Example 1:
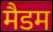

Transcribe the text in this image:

मैडम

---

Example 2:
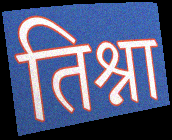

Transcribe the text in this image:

तिश्ना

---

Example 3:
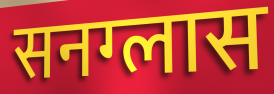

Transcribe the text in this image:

सनग्लास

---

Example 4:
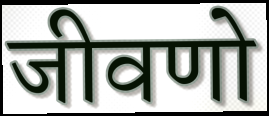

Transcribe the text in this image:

जीवणो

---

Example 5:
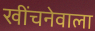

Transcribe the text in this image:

खींचनेवाला